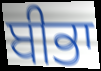
ਬੀਭਾ